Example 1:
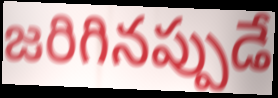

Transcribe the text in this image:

జరిగినప్పుడే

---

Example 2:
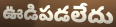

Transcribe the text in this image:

ఊడిపడలేదు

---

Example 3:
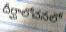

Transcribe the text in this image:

దీర్ఘాలోచనలో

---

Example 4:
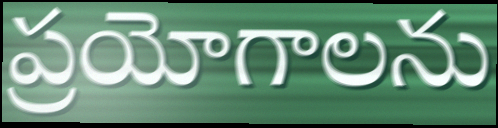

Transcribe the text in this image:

ప్రయోగాలను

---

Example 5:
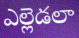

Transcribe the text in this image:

ఎల్లెడలా